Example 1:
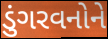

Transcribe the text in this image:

ડુંગરવનોને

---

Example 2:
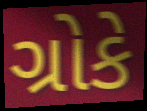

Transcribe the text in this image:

ગ્રોકે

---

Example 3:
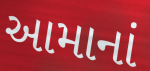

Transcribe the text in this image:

આમાનાં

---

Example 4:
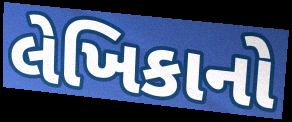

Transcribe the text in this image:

લેખિકાનો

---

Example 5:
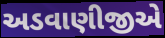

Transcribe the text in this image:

અડવાણીજીએ